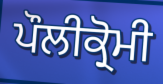
ਪੌਲੀਕ੍ਰੋਮੀ